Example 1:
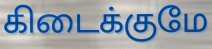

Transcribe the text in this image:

கிடைக்குமே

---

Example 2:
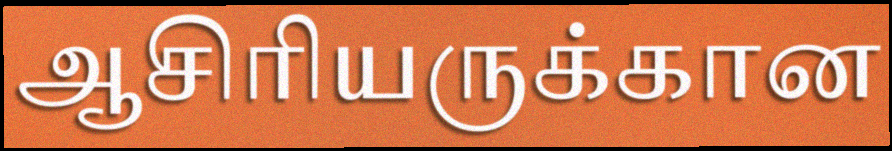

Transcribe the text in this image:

ஆசிரியருக்கான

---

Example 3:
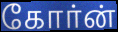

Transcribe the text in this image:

கோர்ன்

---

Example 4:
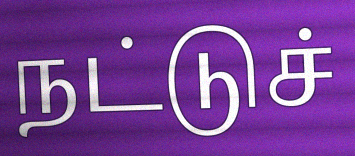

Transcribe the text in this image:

நட்டுச்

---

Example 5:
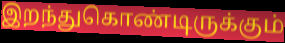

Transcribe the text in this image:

இறந்துகொண்டிருக்கும்